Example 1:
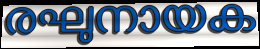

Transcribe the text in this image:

രഘുനായക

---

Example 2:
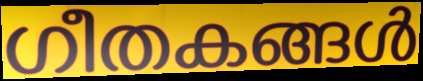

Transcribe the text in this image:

ഗീതകങ്ങൾ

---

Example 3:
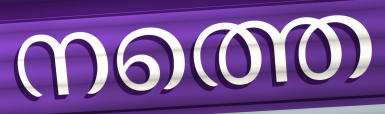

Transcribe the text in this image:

നത്തെ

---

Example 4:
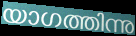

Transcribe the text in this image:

യാഗത്തിന്നു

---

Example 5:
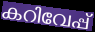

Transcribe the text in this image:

കറിവേപ്പ്